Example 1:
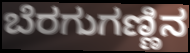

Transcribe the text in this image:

ಬೆರಗುಗಣ್ಣಿನ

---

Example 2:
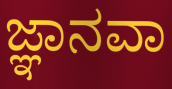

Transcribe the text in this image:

ಜ್ಞಾನವಾ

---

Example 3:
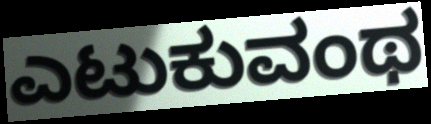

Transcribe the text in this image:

ಎಟುಕುವಂಥ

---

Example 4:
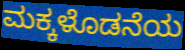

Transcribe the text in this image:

ಮಕ್ಕಳೊಡನೆಯ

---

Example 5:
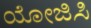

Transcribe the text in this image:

ಯೋಜಿಸಿ